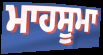
ਮਾਹਸੂਮਾ